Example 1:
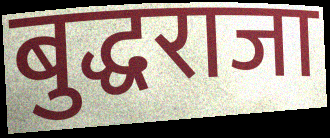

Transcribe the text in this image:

बुद्धराजा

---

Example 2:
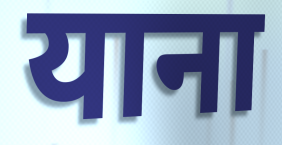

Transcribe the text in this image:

याना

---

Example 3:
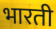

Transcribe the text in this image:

भारती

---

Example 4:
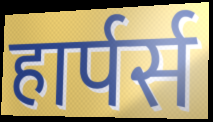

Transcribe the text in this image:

हार्पर्स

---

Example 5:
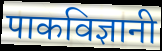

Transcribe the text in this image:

पाकविज्ञानी